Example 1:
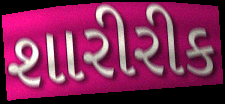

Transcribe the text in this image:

શારીરીક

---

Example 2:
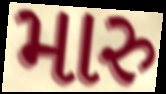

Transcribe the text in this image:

મારુ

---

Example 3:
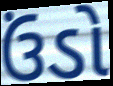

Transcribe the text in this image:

ઉંડો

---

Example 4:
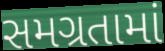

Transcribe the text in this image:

સમગ્રતામાં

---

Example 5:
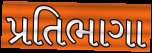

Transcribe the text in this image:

પ્રતિભાગા